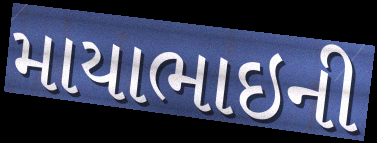
માયાભાઇની